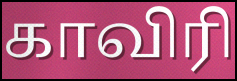
காவிரி